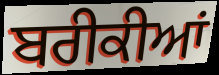
ਬਰੀਕੀਆਂ